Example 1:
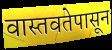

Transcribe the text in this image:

वास्तवतेपासून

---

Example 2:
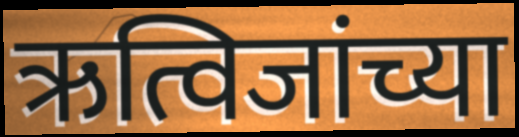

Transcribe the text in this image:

ऋत्विजांच्या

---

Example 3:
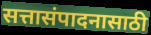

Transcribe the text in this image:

सत्तासंपादनासाठी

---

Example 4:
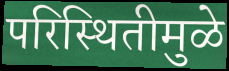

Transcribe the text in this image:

परिस्थितीमुळे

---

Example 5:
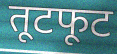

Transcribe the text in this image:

तूटफूट